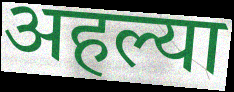
अहल्या